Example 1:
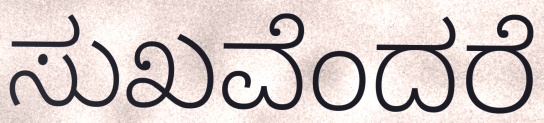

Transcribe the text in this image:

ಸುಖವೆಂದರೆ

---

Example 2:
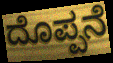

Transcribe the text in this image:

ದೊಪ್ಪನೆ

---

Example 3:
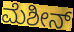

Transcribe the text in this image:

ಮೆಶೀನ್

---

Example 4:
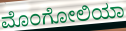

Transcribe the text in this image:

ಮೊಂಗೋಲಿಯಾ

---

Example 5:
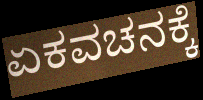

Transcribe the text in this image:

ಏಕವಚನಕ್ಕೆ